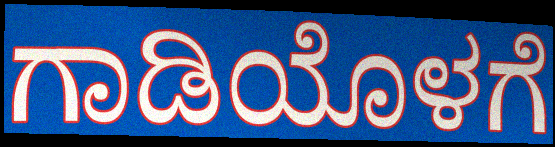
ಗಾಡಿಯೊಳಗೆ